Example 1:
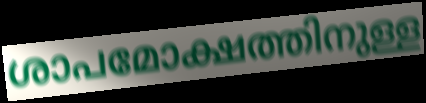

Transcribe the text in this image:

ശാപമോക്ഷത്തിനുള്ള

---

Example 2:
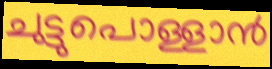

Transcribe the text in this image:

ചുട്ടുപൊള്ളാൻ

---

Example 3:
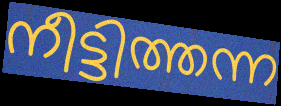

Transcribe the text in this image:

നീട്ടിത്തന്ന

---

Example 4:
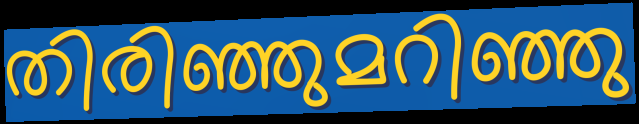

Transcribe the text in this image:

തിരിഞ്ഞുമറിഞ്ഞു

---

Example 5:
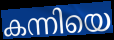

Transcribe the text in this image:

കന്നിയെ